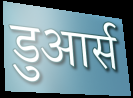
डुआर्स